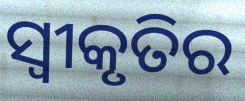
ସ୍ୱୀକୃତିର